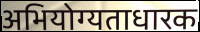
अभियोग्यताधारक